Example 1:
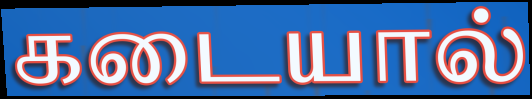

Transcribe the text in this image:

கடையால்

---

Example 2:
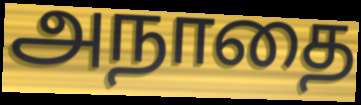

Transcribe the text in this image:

அநாதை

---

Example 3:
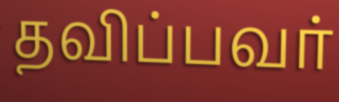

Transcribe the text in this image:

தவிப்பவர்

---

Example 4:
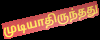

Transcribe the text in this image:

முடியாதிருந்தது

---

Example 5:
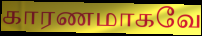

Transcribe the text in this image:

காரணமாகவே